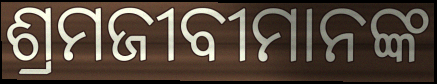
ଶ୍ରମଜୀବୀମାନଙ୍କ